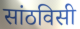
सांठविसी